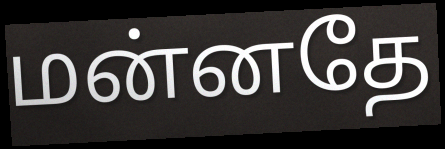
மன்னதே